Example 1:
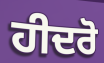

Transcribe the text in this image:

ਹੀਦਰੋ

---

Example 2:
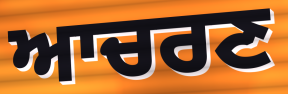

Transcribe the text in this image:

ਆਚਰਣ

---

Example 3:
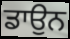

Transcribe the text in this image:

ਡਾਉਨ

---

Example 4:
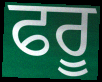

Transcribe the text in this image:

ਫਰੂ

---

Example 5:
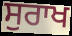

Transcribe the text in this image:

ਸੁਰਾਖ